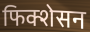
फिक्शेसन